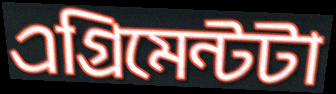
এগ্রিমেন্টটা